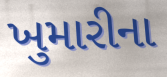
ખુમારીના